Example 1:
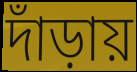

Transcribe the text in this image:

দাঁড়ায়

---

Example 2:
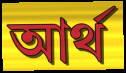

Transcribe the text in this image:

আৰ্থ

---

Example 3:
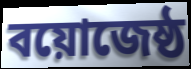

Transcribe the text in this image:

বয়োজেষ্ঠ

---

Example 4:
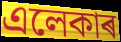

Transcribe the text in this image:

এলেকাৰ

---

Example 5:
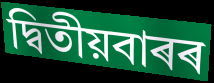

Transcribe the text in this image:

দ্বিতীয়বাৰৰ